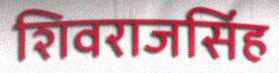
शिवराजसिंह